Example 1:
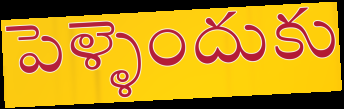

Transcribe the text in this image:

పెళ్ళెందుకు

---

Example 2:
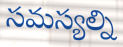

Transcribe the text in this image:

సమస్యల్ని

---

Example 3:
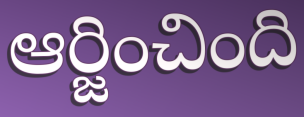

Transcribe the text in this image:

ఆర్జించింది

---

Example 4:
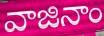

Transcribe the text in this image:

వాజినాం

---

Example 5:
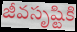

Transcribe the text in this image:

జీవసృష్టికి